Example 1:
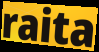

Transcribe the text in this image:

raita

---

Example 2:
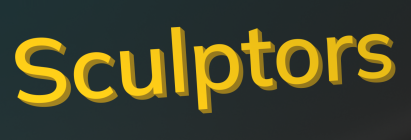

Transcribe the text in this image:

Sculptors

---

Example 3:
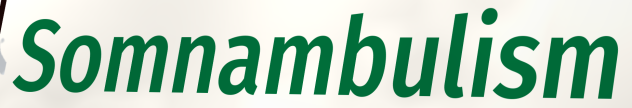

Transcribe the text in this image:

Somnambulism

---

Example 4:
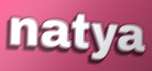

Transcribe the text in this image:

natya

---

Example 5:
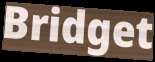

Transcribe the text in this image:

Bridget